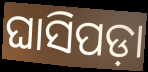
ଘାସିପଡ଼ା